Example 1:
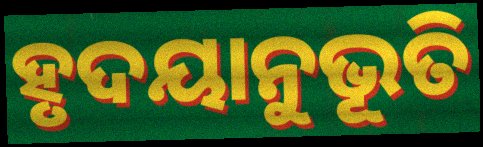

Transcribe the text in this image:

ହୃଦୟାନୁଭୂତି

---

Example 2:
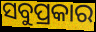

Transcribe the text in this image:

ସବୁପ୍ରକାର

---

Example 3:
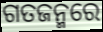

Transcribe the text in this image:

ଗତଜନ୍ମରେ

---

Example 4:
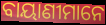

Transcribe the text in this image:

ବାୟାଣୀମାନେ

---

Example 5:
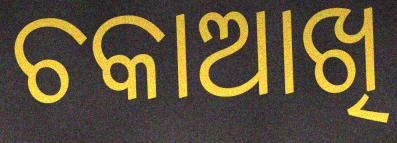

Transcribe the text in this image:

ଚକାଆଖି